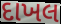
દાખલ